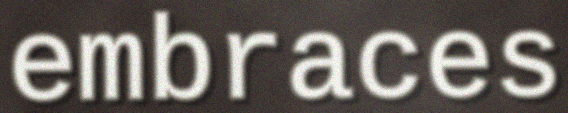
embraces